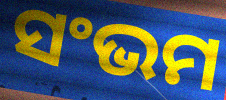
ସଂଭମ